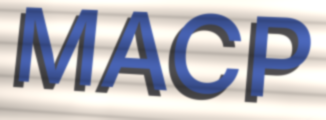
MACP